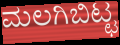
ಮಲಗಿಬಿಟ್ಟ